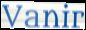
Vanir